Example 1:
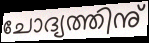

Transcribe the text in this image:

ചോദ്യത്തിനു്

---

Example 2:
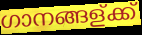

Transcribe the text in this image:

ഗാനങ്ങള്ക്ക്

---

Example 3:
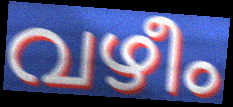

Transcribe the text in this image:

വഴീം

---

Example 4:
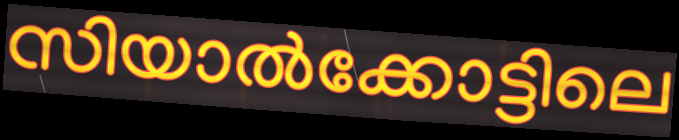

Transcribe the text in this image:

സിയാൽക്കോട്ടിലെ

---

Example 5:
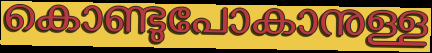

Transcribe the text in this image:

കൊണ്ടുപോകാനുള്ള